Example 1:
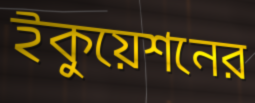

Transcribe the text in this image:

ইকুয়েশনের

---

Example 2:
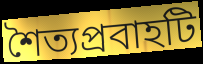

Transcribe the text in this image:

শৈত্যপ্রবাহটি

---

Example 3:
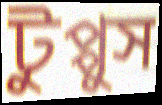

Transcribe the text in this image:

টুপ্পুস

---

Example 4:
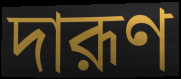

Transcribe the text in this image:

দারূণ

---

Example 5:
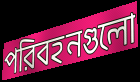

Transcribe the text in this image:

পরিবহনগুলো